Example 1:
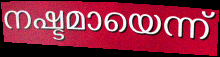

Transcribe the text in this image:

നഷ്ടമായെന്ന്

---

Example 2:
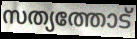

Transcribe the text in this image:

സത്യത്തോട്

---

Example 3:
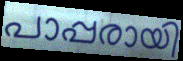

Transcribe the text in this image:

പാപ്പരായി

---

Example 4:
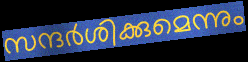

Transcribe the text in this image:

സന്ദർശിക്കുമെന്നും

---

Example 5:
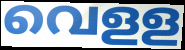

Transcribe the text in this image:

വെളള